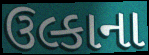
ઉલ્કાના